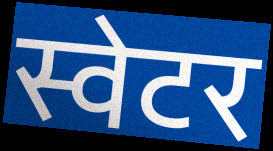
स्वेटर